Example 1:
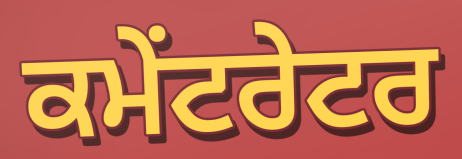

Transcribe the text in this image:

ਕਮੇਂਟਰੇਟਰ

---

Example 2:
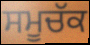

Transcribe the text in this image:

ਸਮੂਚੱਕ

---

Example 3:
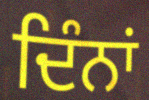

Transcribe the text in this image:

ਦਿੰਨਾਂ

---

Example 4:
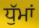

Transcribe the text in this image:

ਧੁੱਮਾਂ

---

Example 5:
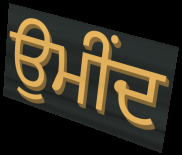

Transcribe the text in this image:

ਉਮੀਂਦ